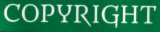
COPYRIGHT